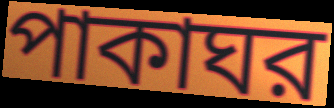
পাকাঘর